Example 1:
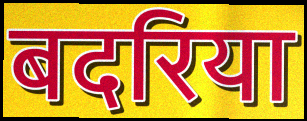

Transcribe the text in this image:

बदरिया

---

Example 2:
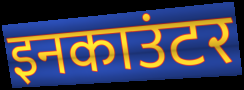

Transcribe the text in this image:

इनकाउंटर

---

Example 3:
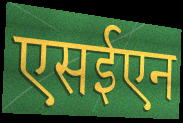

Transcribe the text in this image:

एसईएन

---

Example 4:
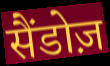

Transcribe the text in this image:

सैंडोज़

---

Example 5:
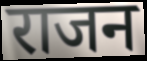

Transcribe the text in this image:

राजन